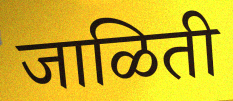
जाळिती